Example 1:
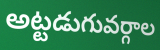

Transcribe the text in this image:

అట్టడుగువర్గాల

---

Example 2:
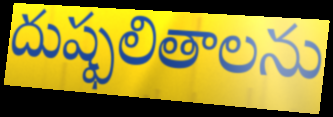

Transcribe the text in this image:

దుష్ఫలితాలను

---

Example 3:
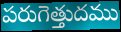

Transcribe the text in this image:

పరుగెత్తుదము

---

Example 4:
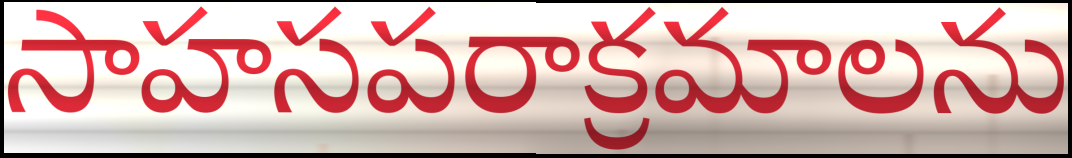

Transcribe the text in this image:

సాహసపరాక్రమాలను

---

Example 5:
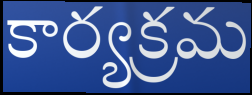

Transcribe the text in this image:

కార్యక్రమ